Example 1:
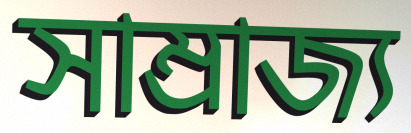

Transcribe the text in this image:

সাম্ৰাজ্য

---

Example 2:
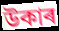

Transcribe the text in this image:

উকাৰ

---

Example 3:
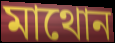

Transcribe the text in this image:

মাথোন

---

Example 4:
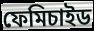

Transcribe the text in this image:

ফেমিচাইড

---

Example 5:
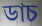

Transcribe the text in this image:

ডাচ